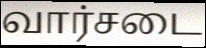
வார்சடை